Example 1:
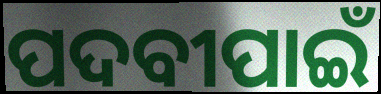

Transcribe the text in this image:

ପଦବୀପାଇଁ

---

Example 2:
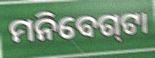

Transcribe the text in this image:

ମନିବେଗ୍‍ଟା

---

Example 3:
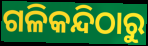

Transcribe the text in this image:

ଗଳିକନ୍ଦିଠାରୁ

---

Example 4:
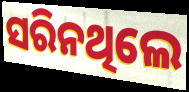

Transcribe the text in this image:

ସରିନଥିଲେ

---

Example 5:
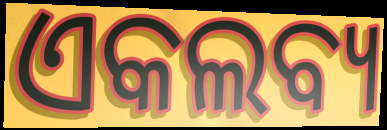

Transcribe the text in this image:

ଏକଲବ୍ୟ